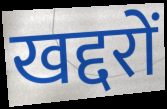
खद्दरों